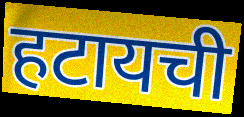
हटायची